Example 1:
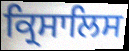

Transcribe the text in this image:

ਕ੍ਰਿਸਾਲਿਸ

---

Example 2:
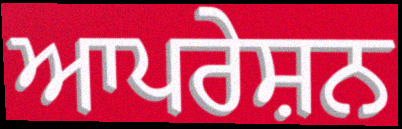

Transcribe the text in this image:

ਆਪਰੇਸ਼ਨ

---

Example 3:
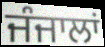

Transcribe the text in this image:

ਜੰਜਾਲਾਂ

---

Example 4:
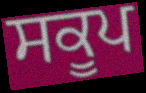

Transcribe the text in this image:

ਸਕੂਪ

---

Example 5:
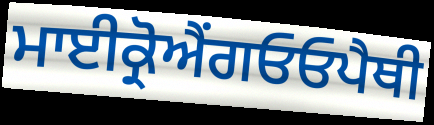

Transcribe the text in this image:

ਮਾਈਕ੍ਰੋਐਂਗਓਓਪੈਥੀ